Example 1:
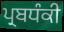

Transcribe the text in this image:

ਪ੍ਰਬਧੰਕੀ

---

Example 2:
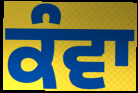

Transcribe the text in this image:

ਕੰਵਾ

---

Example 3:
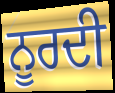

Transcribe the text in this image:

ਨੂਰਦੀ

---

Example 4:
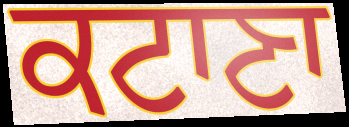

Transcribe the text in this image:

ਕਟਾਣਾ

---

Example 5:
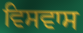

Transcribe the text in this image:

ਵਿਸਵਾਸ